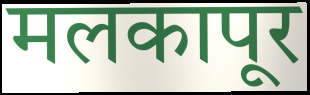
मलकापूर